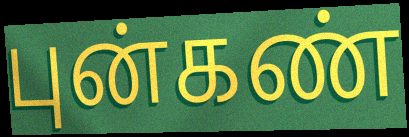
புன்கண்